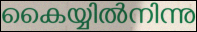
കൈയ്യിൽനിന്നു